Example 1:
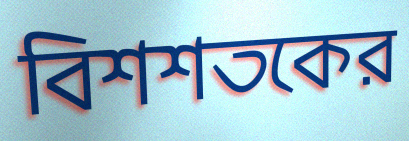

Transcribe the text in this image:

বিশশতকের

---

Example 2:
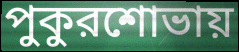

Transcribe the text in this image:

পুকুরশোভায়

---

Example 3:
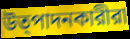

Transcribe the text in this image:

উত্পাদনকারীরা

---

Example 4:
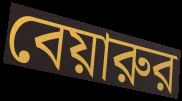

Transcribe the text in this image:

বেয়ারুর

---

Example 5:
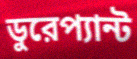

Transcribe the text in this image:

ডুরেপ্যান্ট